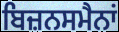
ਬਿਜ਼ਨਸਮੈਨਾਂ